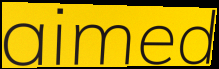
aimed